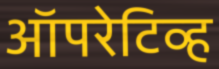
ऑपरेटिव्ह